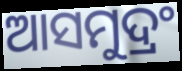
ଆସମୁଦ୍ରଂ